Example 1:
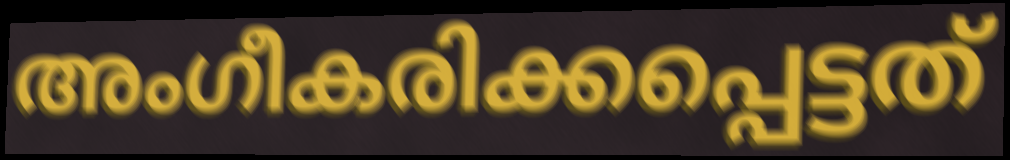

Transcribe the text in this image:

അംഗീകരിക്കപ്പെട്ടത്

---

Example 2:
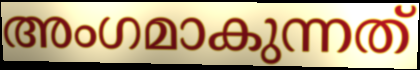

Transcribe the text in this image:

അംഗമാകുന്നത്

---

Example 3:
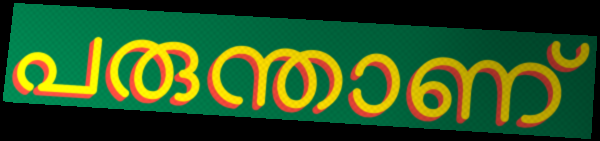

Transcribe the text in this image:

പരുന്താണ്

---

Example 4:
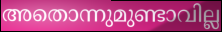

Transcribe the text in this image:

അതൊന്നുമുണ്ടാവില്ല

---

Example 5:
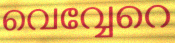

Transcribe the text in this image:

വെവ്വേറെ